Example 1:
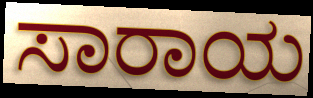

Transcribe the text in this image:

ಸಾರಾಯ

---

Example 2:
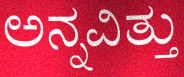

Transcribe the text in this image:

ಅನ್ನವಿತ್ತು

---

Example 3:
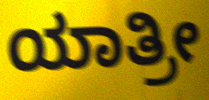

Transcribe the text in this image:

ಯಾತ್ರೀ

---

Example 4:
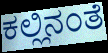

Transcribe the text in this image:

ಕಲ್ಲಿನಂತೆ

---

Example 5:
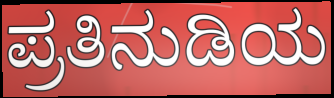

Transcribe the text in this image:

ಪ್ರತಿನುಡಿಯ